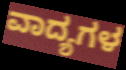
ವಾದ್ಯಗಳ